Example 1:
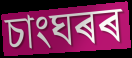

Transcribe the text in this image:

চাংঘৰৰ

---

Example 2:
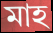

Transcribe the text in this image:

মাহ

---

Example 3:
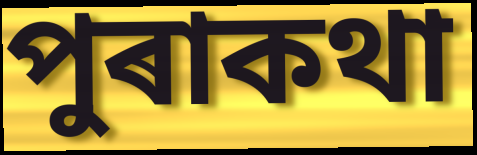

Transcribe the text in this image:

পুৰাকথা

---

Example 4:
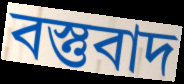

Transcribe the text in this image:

বস্তুবাদ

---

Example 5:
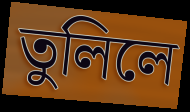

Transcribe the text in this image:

তুলিলে